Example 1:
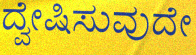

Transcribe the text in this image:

ದ್ವೇಷಿಸುವುದೇ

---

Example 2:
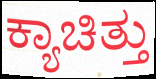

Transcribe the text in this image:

ಕ್ಯಾಚಿತ್ತು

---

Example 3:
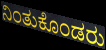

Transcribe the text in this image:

ನಿಂತುಕೊಂಡರು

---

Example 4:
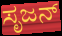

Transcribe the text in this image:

ಸೃಜನ್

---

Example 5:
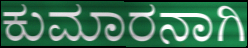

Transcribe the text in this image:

ಕುಮಾರನಾಗಿ